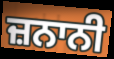
ਜ਼ਨਾਨੀ